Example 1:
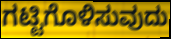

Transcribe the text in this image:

ಗಟ್ಟಿಗೊಳಿಸುವುದು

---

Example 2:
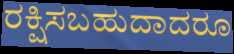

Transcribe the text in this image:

ರಕ್ಷಿಸಬಹುದಾದರೂ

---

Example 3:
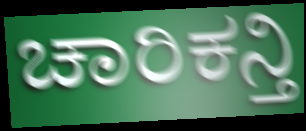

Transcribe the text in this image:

ಚಾರಿಕನ್ತಿ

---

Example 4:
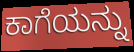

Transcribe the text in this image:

ಕಾಗೆಯನ್ನು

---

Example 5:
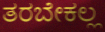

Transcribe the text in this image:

ತರಬೇಕಲ್ಲ